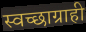
स्वच्छाग्राही